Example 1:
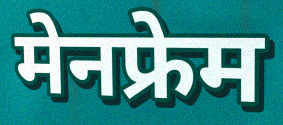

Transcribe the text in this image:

मेनफ्रेम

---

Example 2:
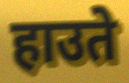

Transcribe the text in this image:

हाउते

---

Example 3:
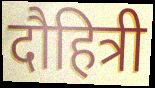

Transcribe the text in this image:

दौहित्री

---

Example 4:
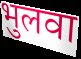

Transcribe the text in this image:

भुलवा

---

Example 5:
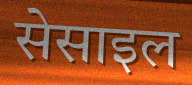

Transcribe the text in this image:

सेसाइल